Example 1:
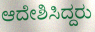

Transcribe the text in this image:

ಆದೇಶಿಸಿದ್ದರು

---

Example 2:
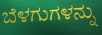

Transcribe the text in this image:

ಬೆಳಗುಗಳನ್ನು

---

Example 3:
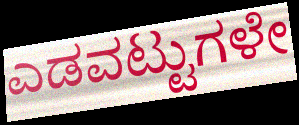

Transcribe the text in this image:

ಎಡವಟ್ಟುಗಳೇ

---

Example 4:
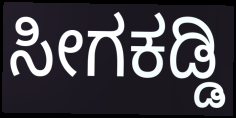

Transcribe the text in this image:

ಸೀಗಕಡ್ಡಿ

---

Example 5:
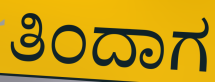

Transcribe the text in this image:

ತಿಂದಾಗ